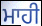
ਮਾਹੀ